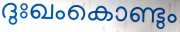
ദുഃഖംകൊണ്ടും